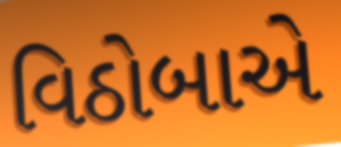
વિઠોબાએ